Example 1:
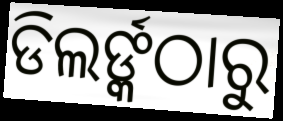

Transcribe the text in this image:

ଡିଲର୍ଙ୍କଠାରୁ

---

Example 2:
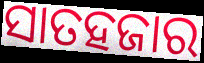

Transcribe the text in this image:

ସାତହଜାର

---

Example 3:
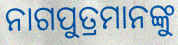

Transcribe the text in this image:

ନାଗପୁତ୍ରମାନଙ୍କୁ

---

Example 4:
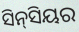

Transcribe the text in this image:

ସିନ୍‌ସିୟର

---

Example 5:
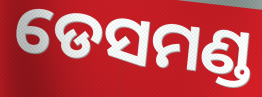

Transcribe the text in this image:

ଡେସମଣ୍ଡ